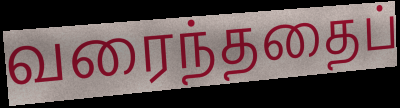
வரைந்ததைப்